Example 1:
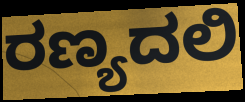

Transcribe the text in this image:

ರಣ್ಯದಲಿ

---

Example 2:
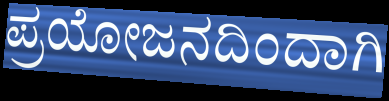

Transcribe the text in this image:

ಪ್ರಯೋಜನದಿಂದಾಗಿ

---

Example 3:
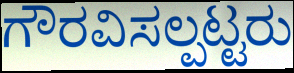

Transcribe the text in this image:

ಗೌರವಿಸಲ್ಪಟ್ಟರು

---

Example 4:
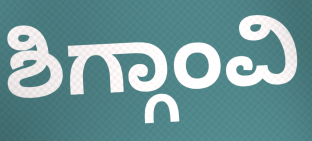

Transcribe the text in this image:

ಶಿಗ್ಗಾಂವಿ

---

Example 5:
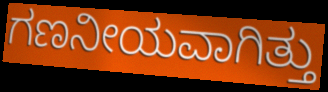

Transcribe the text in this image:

ಗಣನೀಯವಾಗಿತ್ತು